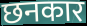
छनकार